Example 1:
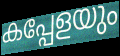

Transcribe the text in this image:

കപ്പേളയും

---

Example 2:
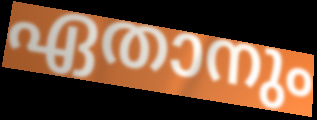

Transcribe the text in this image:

ഏതാനും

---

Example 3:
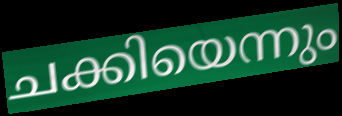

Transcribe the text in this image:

ചക്കിയെന്നും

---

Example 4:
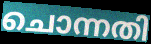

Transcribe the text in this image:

ചൊന്നതി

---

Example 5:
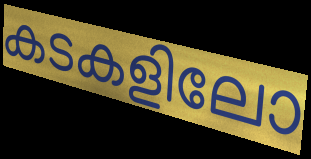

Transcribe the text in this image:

കടകളിലോ